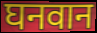
घनवान